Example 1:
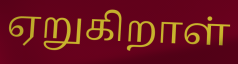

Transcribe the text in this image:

ஏறுகிறாள்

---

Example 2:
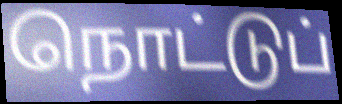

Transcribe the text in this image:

நொட்டுப்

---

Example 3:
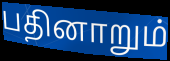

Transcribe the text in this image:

பதினாறும்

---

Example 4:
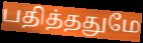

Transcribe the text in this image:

பதித்ததுமே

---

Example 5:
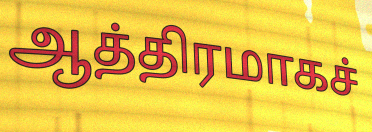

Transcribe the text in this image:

ஆத்திரமாகச்